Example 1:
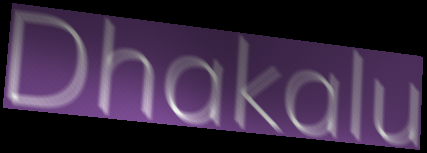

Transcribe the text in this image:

Dhakalu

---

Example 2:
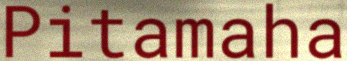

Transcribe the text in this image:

Pitamaha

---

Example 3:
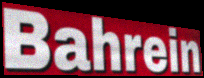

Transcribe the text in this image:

Bahrein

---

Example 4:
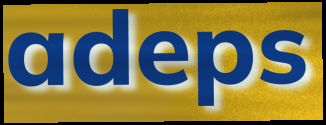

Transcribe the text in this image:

adeps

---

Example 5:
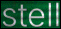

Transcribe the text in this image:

stell